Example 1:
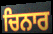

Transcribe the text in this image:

ਚਿਨਾਰ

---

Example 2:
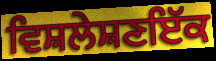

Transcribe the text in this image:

ਵਿਸ਼ਲੇਸ਼ਣਇੱਕ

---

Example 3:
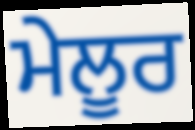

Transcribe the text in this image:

ਮੇਲੂਰ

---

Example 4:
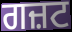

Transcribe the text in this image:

ਗਜ਼ਟ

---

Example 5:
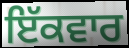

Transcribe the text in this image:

ਇੱਕਵਾਰ